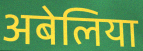
अबेलिया